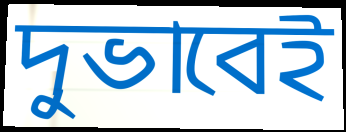
দুভাবেই